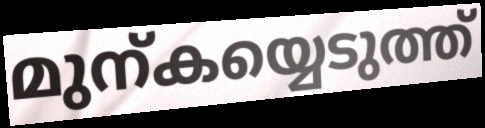
മുന്കയ്യെടുത്ത്